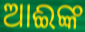
ଆଈଙ୍କ